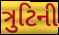
ત્રુટિની